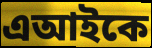
এআইকে